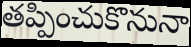
తప్పించుకొనునా